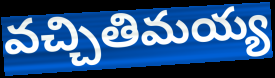
వచ్చితిమయ్య